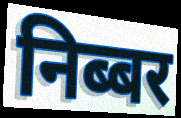
निब्बर